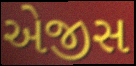
એજીસ